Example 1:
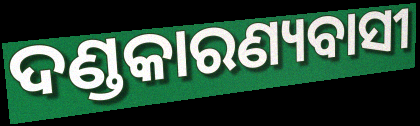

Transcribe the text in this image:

ଦଣ୍ଡକାରଣ୍ୟବାସୀ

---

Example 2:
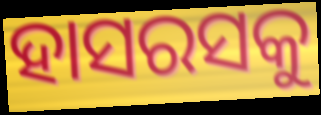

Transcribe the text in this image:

ହାସରସକୁ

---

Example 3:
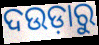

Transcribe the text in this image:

ଦଉଡ଼ାରୁ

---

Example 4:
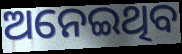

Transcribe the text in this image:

ଅନେଇଥିବ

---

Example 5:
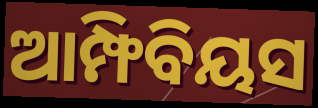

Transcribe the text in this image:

ଆମ୍ଫିବିୟସ